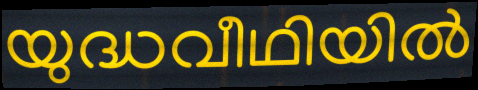
യുദ്ധവീഥിയിൽ